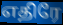
எதிரே